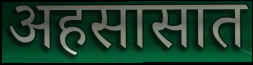
अहसासात